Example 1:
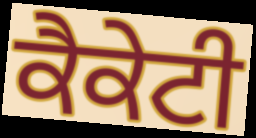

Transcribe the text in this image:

ਕੈਕੇਟੀ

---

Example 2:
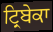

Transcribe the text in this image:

ਟ੍ਰਿਬੇਕਾ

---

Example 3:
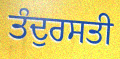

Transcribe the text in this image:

ਤੰਦੁਰਸਤੀ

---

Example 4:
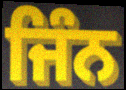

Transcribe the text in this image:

ਜਿੰਨ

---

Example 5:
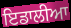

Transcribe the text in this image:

ਇਡਾਲੀਆ